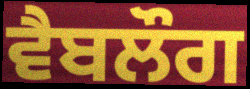
ਵੈਬਲੌਗ